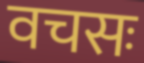
वचसः